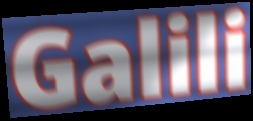
Galili